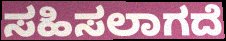
ಸಹಿಸಲಾಗದೆ